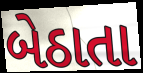
બેઠાતા